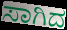
ಸಾಗಿದ